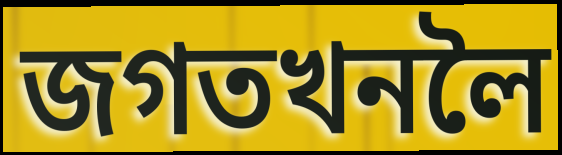
জগতখনলৈ